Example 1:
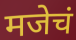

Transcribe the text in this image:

मजेचं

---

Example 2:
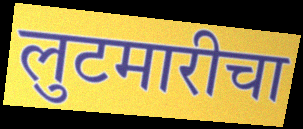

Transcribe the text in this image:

लुटमारीचा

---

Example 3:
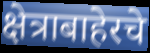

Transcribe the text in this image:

क्षेत्राबाहेरचे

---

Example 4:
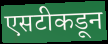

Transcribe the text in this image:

एसटीकडून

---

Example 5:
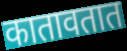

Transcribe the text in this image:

कातावतात